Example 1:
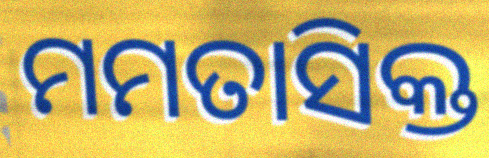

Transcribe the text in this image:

ମମତାସିକ୍ତ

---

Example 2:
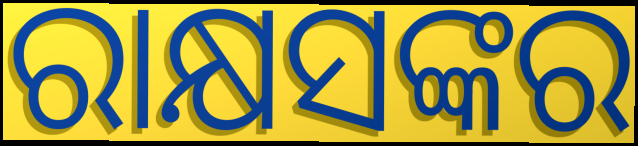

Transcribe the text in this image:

ରାକ୍ଷସଙ୍କର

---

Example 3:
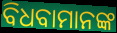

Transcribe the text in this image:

ବିଧବାମାନଙ୍କ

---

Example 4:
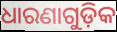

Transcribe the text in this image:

ଧାରଣାଗୁଡ଼ିକ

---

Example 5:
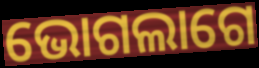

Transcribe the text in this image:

ଭୋଗଲାଗେ